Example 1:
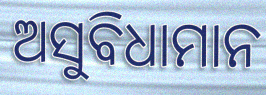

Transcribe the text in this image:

ଅସୁବିଧାମାନ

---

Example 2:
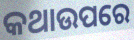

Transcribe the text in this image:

କଥାଉପରେ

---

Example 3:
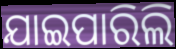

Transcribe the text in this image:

ଯାଇପାରିଲି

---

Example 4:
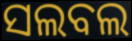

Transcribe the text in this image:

ସଲବଲ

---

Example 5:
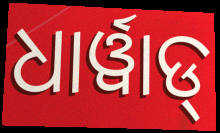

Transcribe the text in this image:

ଧାର୍ୱାଡ୍